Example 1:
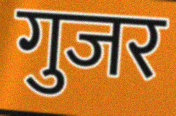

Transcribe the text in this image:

गुजर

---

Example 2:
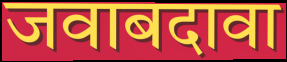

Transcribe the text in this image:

जवाबदावा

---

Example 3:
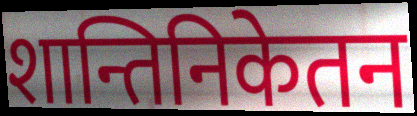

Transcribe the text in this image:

शान्तिनिकेतन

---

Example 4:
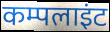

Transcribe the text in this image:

कम्पलाइंट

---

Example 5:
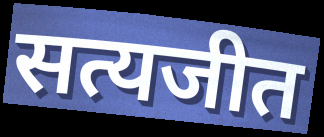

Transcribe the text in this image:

सत्यजीत